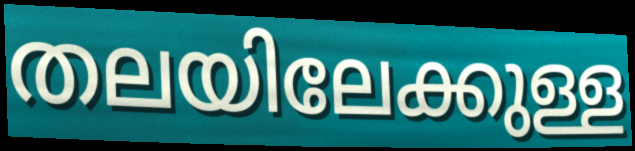
തലയിലേക്കുള്ള